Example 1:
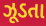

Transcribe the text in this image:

ઝૂડતા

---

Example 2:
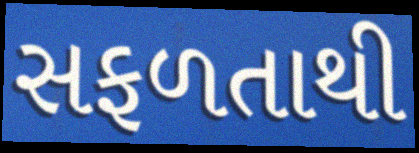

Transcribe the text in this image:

સફળતાથી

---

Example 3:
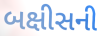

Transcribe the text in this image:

બક્ષીસની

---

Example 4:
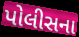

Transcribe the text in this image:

પોલીસના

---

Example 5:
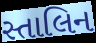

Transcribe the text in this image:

સ્તાલિન